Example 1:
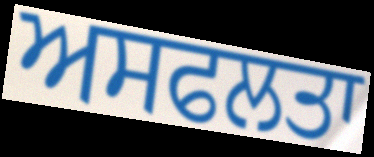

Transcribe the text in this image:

ਅਸਫਲਤਾ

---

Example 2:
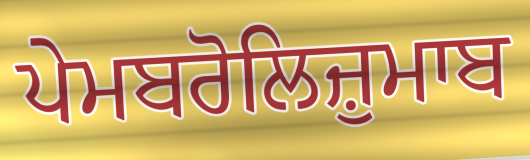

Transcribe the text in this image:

ਪੇਮਬਰੋਲਿਜ਼ੁਮਾਬ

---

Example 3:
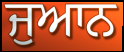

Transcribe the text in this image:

ਜੁਆਨ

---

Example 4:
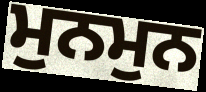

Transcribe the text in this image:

ਮੁਨਮੁਨ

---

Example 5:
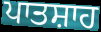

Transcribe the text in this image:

ਪਾਤਸ਼ਾਹ